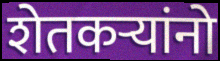
शेतकऱ्यांनो